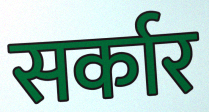
सर्कार